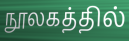
நூலகத்தில்